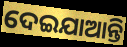
ଦେଇଯାଆନ୍ତି